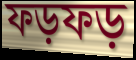
ফড়ফড়